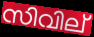
സിവില്